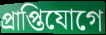
প্রাপ্তিযোগে